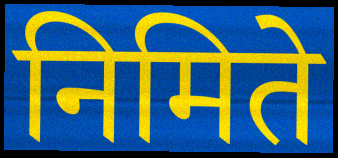
निमिते